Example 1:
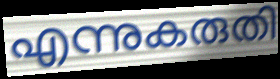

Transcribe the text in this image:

എന്നുകരുതി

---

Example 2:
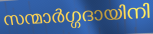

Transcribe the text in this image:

സന്മാർഗ്ഗദായിനി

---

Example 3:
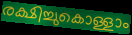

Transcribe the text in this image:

രക്ഷിച്ചുകൊള്ളാം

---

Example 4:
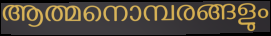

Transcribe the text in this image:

ആത്മനൊമ്പരങ്ങളും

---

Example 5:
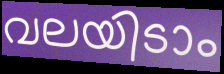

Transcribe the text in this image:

വലയിടാം